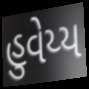
હુવેય્ય